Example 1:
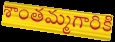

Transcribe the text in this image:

శాంతమ్మగారికి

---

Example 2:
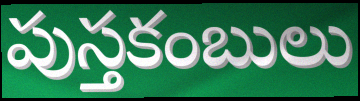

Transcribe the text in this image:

పుస్తకంబులు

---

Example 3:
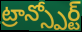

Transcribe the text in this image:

ట్రాన్స్పోర్ట్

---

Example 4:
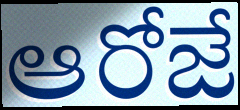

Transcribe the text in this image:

ఆరోజే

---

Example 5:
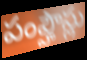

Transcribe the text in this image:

పంప్హౌస్లు